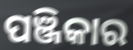
ପଞ୍ଜିକାର